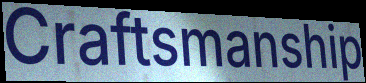
Craftsmanship